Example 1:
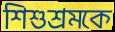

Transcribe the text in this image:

শিশুশ্রমকে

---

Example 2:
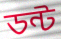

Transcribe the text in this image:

ডন্ট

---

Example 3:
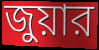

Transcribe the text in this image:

জুয়ার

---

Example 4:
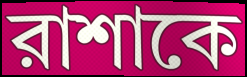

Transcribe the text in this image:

রাশাকে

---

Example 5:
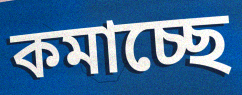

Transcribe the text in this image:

কমাচ্ছে